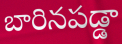
బారినపడ్డా